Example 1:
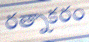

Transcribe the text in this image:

రత్నాకరం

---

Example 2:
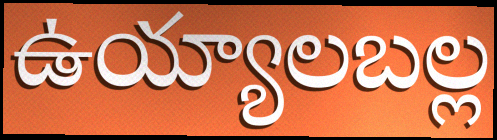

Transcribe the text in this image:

ఉయ్యాలబల్ల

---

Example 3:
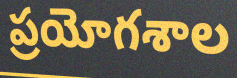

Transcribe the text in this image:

ప్రయోగశాల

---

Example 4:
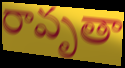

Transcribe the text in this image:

రావృతా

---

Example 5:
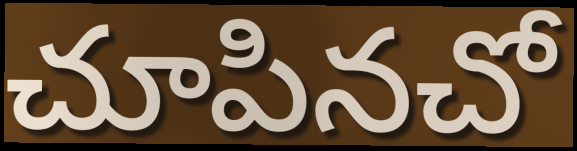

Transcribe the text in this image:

చూపినచో